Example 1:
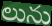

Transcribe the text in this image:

లును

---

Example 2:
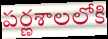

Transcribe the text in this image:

పర్ణశాలలోకి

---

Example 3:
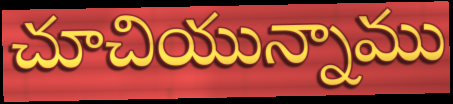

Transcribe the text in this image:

చూచియున్నాము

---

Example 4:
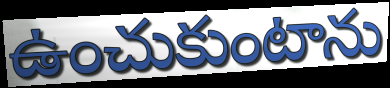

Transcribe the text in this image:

ఉంచుకుంటాను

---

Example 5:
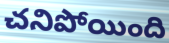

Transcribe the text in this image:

చనిపోయింది